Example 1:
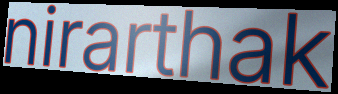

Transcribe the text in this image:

nirarthak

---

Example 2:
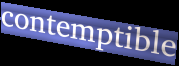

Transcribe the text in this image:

contemptible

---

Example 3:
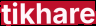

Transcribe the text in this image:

tikhare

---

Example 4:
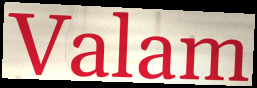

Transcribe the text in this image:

Valam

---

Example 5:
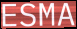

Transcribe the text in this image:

ESMA